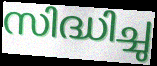
സിദ്ധിച്ചു